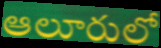
ఆలూరులో